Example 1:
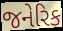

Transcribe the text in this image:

જનેરિક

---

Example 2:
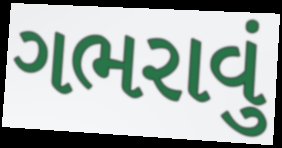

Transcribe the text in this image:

ગભરાવું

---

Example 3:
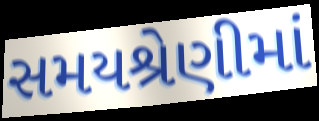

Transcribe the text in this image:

સમયશ્રેણીમાં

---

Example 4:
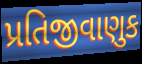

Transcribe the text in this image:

પ્રતિજીવાણુક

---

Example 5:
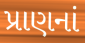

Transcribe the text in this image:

પ્રાણનાં